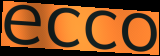
ecco